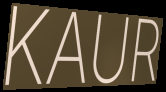
KAUR